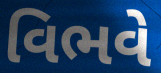
વિભવે